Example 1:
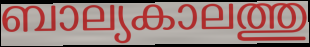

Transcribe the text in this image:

ബാല്യകാലത്തു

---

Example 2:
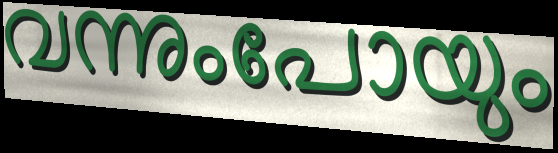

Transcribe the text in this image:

വന്നുംപോയും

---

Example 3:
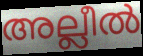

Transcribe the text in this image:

അല്ലീൽ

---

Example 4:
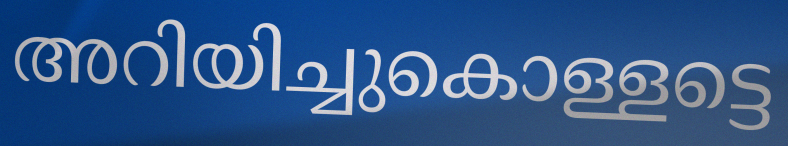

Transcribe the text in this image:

അറിയിച്ചുകൊള്ളട്ടെ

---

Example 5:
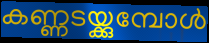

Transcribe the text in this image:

കണ്ണടയ്ക്കുമ്പോൾ